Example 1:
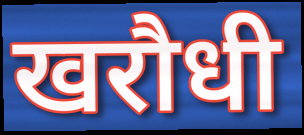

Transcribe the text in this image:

खरौधी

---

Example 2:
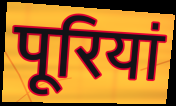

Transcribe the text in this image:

पूरियां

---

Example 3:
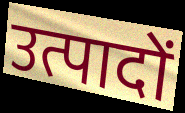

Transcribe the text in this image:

उत्पादों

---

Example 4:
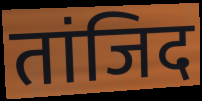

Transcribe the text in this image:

तांजिद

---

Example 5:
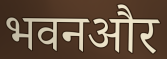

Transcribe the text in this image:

भवनऔर